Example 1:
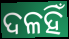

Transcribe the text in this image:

ଦଳହିଁ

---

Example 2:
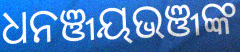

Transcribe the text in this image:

ଧନଞ୍ଜୟଭଞ୍ଜଙ୍କ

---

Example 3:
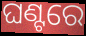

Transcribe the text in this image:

ଘଣ୍ଟରେ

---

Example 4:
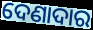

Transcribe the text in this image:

ଦେଣାଦାର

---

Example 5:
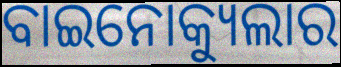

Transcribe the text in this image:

ବାଇନୋକ୍ୟୁଲାର